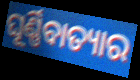
ଘୂର୍ଣ୍ଣିବାତ୍ୟାର